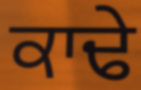
ਕਾਢੇ